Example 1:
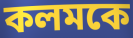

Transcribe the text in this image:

কলমকে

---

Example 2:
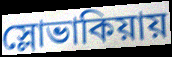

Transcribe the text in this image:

স্লোভাকিয়ায়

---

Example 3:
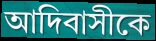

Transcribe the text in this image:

আদিবাসীকে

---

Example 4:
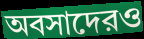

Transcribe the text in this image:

অবসাদেরও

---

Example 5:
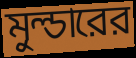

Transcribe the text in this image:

মুল্ডারের